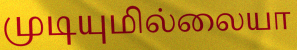
முடியுமில்லையா